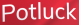
Potluck